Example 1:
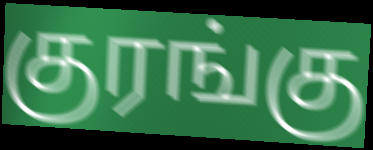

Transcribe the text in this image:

குரங்கு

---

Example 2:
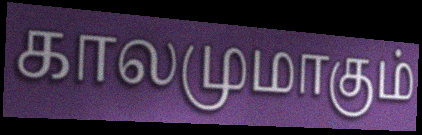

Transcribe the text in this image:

காலமுமாகும்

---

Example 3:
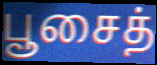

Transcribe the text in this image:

பூசைத்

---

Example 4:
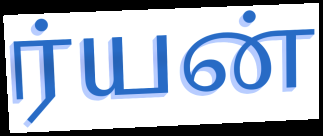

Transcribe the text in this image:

ர்யன்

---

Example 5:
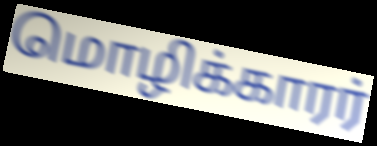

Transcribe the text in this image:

மொழிக்காரர்